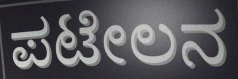
ಪಟೇಲನ